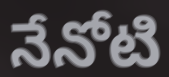
నేనోటి